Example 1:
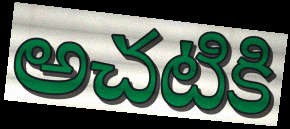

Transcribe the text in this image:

అచటికి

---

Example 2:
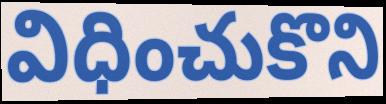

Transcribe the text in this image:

విధించుకొని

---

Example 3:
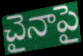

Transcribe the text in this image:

చైనాపై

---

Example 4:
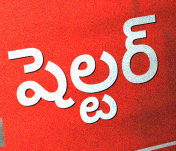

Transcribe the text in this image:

షెల్టర్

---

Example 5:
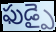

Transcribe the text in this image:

ఫుడ్పై